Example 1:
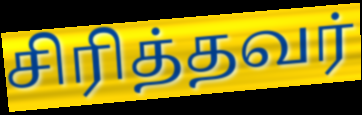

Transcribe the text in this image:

சிரித்தவர்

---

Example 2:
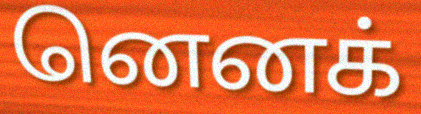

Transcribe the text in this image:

னெனக்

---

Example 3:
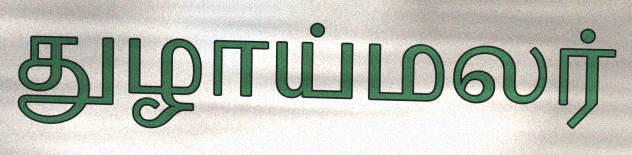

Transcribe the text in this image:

துழாய்மலர்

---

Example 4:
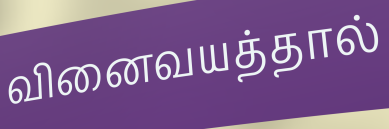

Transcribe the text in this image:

வினைவயத்தால்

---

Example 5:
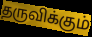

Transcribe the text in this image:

தருவிக்கும்